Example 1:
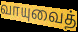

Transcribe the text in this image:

வாயுவைத்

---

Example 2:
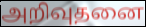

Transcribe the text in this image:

அறிவுதனை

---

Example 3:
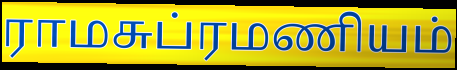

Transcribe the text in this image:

ராமசுப்ரமணியம்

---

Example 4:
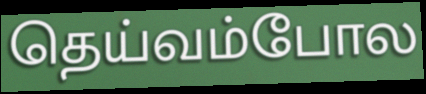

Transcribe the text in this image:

தெய்வம்போல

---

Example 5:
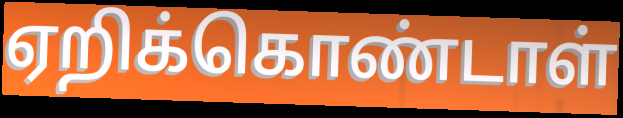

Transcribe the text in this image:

ஏறிக்கொண்டாள்